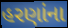
હરણાંના